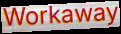
Workaway